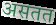
असतत